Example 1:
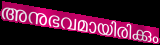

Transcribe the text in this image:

അനുഭവമായിരിക്കും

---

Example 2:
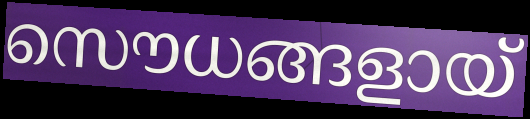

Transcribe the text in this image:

സൌധങ്ങളായ്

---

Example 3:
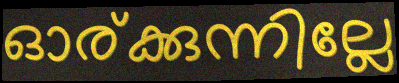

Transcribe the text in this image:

ഓര്ക്കുന്നില്ലേ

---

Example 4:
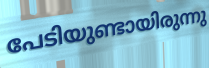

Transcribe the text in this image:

പേടിയുണ്ടായിരുന്നു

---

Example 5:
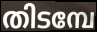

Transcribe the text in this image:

തിടമ്പേ